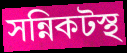
সন্নিকটস্থ